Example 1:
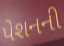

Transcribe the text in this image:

પેશનની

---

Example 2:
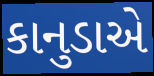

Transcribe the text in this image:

કાનુડાએ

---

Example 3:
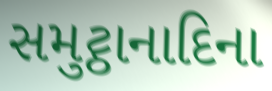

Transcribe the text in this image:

સમુટ્ઠાનાદિના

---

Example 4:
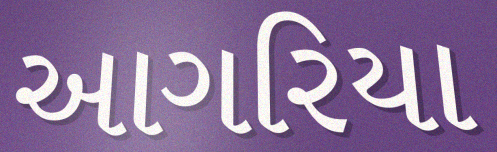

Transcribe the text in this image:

આગરિયા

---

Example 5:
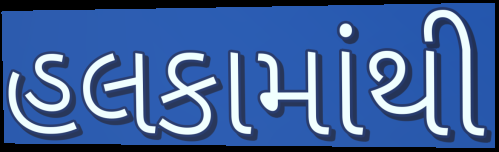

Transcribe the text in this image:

હલકામાંથી